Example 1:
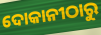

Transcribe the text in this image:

ଦୋକାନୀଠାରୁ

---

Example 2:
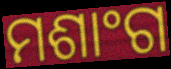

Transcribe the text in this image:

ମଶାଂଗ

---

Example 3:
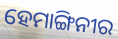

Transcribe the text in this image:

ହେମାଙ୍ଗିନୀର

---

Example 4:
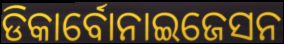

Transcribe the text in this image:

ଡିକାର୍ବୋନାଇଜେସନ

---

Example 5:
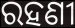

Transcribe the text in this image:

ରହଣୀ